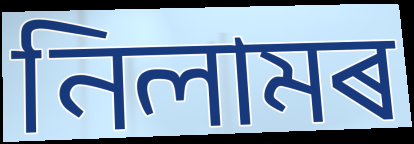
নিলামৰ